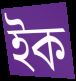
ইক